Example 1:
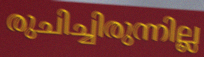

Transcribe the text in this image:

രുചിച്ചിരുന്നില്ല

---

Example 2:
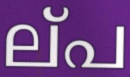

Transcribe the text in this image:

ല്‌പ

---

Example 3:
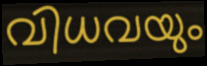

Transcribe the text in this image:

വിധവയും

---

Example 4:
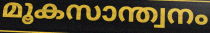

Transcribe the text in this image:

മൂകസാന്ത്വനം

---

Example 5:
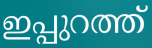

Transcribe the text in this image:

ഇപ്പുറത്ത്